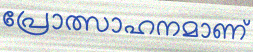
പ്രോത്സാഹനമാണ്